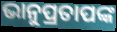
ଭାନୁପ୍ରତାପଙ୍କ